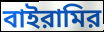
বাইরামির